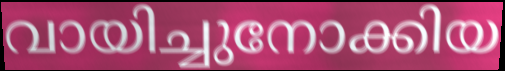
വായിച്ചുനോക്കിയ